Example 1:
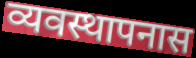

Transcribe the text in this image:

व्यवस्थापनास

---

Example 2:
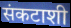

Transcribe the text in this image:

संकटाशी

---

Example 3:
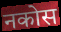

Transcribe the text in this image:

नकोस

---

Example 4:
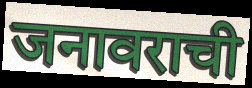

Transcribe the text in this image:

जनावराची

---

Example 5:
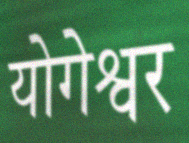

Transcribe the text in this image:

योगेश्वर